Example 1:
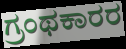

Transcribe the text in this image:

ಗ್ರಂಥಕಾರರ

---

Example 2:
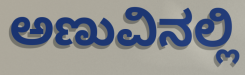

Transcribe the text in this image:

ಅಣುವಿನಲ್ಲಿ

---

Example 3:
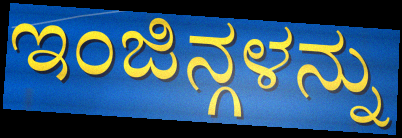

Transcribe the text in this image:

ಇಂಜಿನ್ಗಳನ್ನು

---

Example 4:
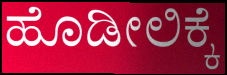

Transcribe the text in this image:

ಹೊಡೀಲಿಕ್ಕೆ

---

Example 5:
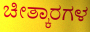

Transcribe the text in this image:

ಚೀತ್ಕಾರಗಳ